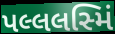
પલ્લલસ્મિં